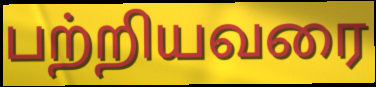
பற்றியவரை